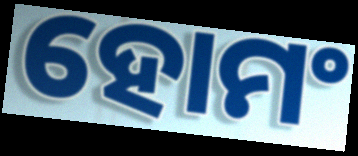
ହୋମଂ